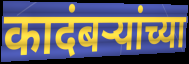
कादंबऱ्यांच्या